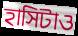
হাসিটাও